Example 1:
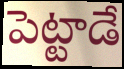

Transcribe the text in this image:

పెట్టాడే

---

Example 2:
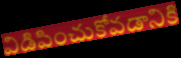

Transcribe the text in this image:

విడిపించుకోవడానికి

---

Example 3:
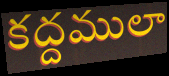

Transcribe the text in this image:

కద్దములా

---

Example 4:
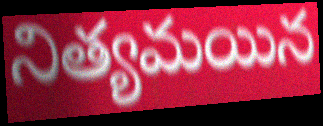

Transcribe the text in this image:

నిత్యమయిన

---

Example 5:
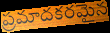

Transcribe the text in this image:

ప్రమాదకరమైన